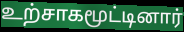
உற்சாகமூட்டினார்